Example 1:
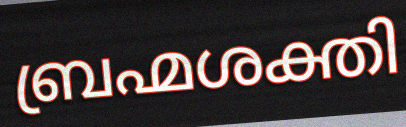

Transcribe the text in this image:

ബ്രഹ്മശക്തി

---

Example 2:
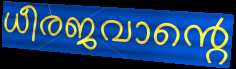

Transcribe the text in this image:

ധീരജവാന്റെ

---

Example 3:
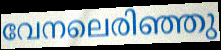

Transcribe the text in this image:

വേനലെരിഞ്ഞു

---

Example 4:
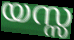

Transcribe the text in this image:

യസ്സ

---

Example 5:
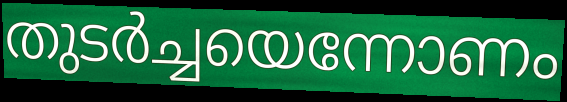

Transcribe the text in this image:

തുടർച്ചയെന്നോണം